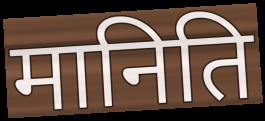
मानिति